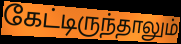
கேட்டிருந்தாலும்